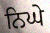
ਨਿਘੇ